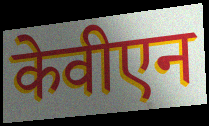
केवीएन